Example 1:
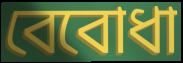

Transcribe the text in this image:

বেবোধা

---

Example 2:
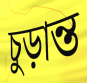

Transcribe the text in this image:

চুড়ান্ত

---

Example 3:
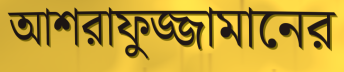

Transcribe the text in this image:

আশরাফুজ্জামানের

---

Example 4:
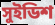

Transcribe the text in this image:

সুইডিশ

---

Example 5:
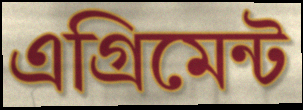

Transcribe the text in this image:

এগ্রিমেন্ট